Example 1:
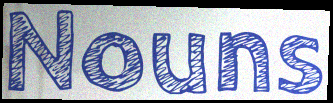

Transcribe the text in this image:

Nouns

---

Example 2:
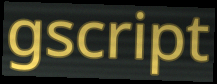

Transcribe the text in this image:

gscript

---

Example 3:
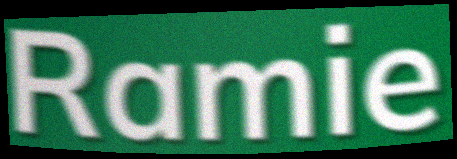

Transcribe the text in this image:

Ramie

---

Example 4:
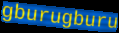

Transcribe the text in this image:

gburugburu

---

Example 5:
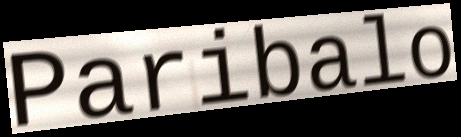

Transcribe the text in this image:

Paribalo